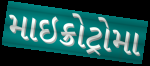
માઇક્રોટ્રોમા